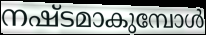
നഷ്ടമാകുമ്പോൾ